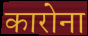
कारोना